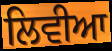
ਲਿਵੀਆ